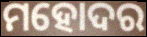
ମହୋଦର